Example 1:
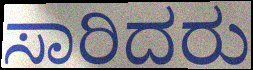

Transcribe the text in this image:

ಸಾರಿದರು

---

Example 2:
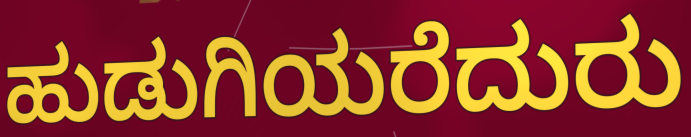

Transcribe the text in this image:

ಹುಡುಗಿಯರೆದುರು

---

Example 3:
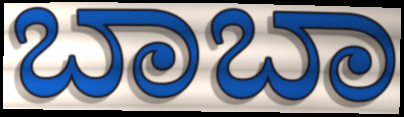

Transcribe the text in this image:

ಬಾಬಾ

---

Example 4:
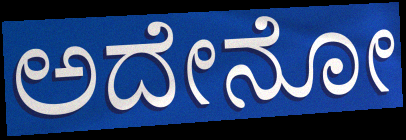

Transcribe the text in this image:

ಅದೇನೋ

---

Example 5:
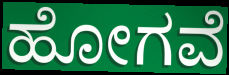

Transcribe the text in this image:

ಹೋಗವೆ